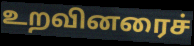
உறவினரைச்